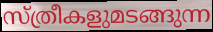
സ്ത്രീകളുമടങ്ങുന്ന